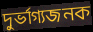
দুৰ্ভাগ্যজনক